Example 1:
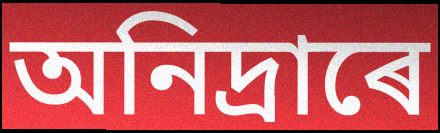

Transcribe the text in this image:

অনিদ্ৰাৰে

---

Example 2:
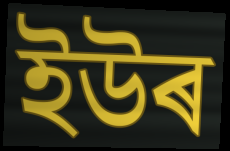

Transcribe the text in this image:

ইউৰ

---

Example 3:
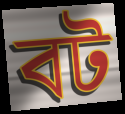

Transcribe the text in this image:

বট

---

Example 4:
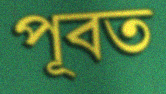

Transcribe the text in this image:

পূবত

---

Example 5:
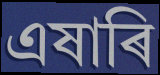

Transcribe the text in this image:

এষাৰি